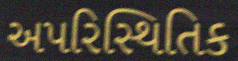
અપરિસ્થિતિક